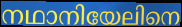
നഥാനിയേലിനെ